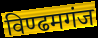
विण्ढमगंज